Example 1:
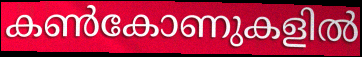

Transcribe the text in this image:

കൺകോണുകളിൽ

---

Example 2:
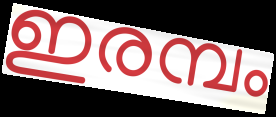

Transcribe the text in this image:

ഇരമ്പം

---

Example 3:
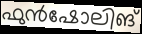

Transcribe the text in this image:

ഫുൻഷോലിങ്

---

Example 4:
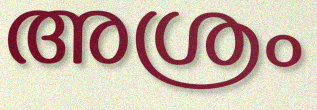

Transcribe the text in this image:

അശ്രം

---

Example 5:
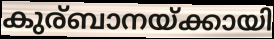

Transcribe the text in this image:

കുര്ബാനയ്ക്കായി